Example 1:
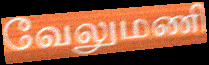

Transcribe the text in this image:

வேலுமணி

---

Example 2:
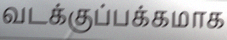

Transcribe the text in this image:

வடக்குப்பக்கமாக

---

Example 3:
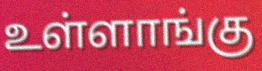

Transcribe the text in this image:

உள்ளாங்கு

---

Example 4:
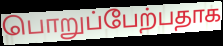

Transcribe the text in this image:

பொறுப்பேற்பதாக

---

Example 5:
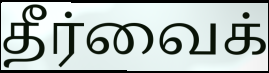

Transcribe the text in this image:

தீர்வைக்